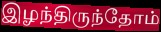
இழந்திருந்தோம்